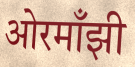
ओरमाँझी